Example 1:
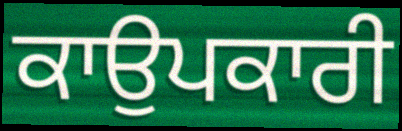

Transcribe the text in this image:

ਕਾਉਪਕਾਰੀ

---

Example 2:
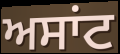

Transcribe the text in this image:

ਅਸਾਂਟ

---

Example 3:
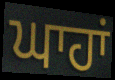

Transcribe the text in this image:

ਘਾਹਾਂ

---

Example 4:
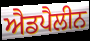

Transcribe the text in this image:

ਐਡਪੈਲੀਨ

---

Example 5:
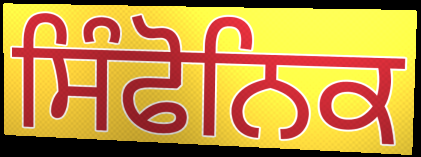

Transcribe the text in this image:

ਸਿੰਫੋਨਿਕ